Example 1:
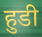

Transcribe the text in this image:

हुडी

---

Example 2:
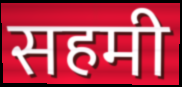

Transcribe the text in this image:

सहमी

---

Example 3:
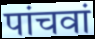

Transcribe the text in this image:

पांचवां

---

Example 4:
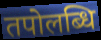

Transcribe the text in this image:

तपोलब्धि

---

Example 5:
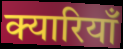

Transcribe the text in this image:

क्यारियाँ